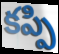
కప్పి